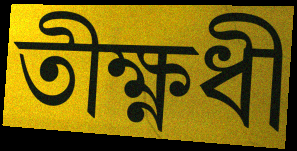
তীক্ষ্ণধী